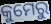
କୁମେରୁ